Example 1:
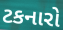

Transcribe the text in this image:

ટકનારો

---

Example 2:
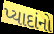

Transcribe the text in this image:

પ્યાદાંનો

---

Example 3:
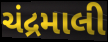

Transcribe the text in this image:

ચંદ્રમાલી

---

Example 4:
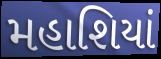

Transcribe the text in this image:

મહાશિયાં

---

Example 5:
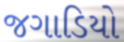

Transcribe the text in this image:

જગાડિયો